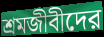
শ্রমজীবীদের